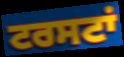
ਟਰਸਟਾਂ